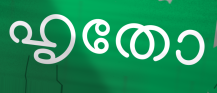
ഹൃതോ